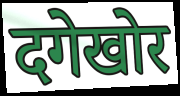
दगेखोर